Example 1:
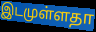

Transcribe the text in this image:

இடமுள்ளதா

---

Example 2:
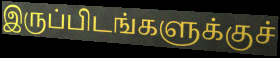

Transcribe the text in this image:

இருப்பிடங்களுக்குச்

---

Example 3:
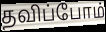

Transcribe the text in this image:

தவிப்போம்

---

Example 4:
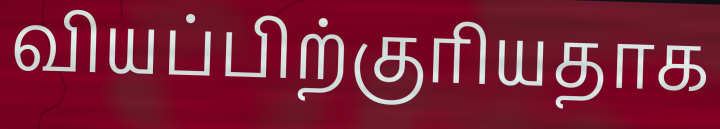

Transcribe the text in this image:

வியப்பிற்குரியதாக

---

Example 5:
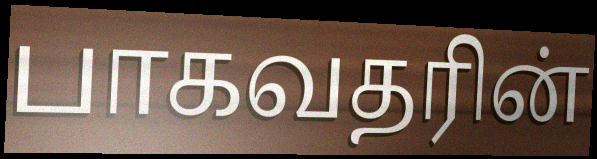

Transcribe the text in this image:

பாகவதரின்